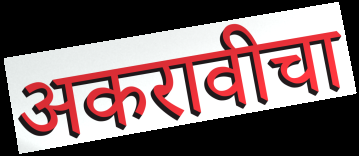
अकरावीचा